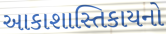
આકાશાસ્તિકાયનો